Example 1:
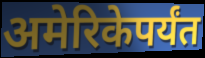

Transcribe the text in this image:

अमेरिकेपर्यंत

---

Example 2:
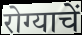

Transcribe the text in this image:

रोग्याचें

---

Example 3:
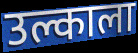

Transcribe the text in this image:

उल्काला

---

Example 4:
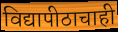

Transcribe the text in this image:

विद्यापीठाचाही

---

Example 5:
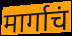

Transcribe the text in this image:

मार्गाचं